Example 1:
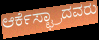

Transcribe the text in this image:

ಆರ್ಕೆಸ್ಟ್ರಾದವರು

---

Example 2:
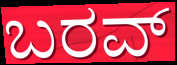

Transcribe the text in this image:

ಬರವ್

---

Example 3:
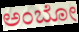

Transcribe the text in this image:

ಅಂಬೋ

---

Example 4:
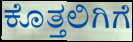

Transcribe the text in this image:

ಕೊತ್ತಲಿಗಿಗೆ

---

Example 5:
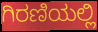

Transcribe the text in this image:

ಗಿರಣಿಯಲ್ಲಿ